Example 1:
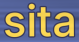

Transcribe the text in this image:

sita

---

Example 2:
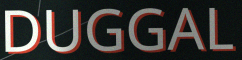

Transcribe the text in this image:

DUGGAL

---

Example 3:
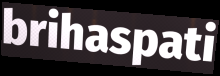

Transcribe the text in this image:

brihaspati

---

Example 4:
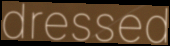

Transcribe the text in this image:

dressed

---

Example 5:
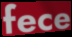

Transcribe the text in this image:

fece